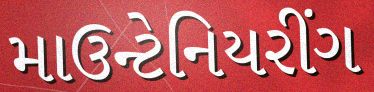
માઉન્ટેનિયરીંગ